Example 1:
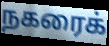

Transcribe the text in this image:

நகரைக்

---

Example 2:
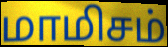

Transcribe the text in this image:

மாமிசம்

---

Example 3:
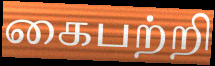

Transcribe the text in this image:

கைபற்றி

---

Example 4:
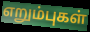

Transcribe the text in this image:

எறும்புகள்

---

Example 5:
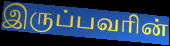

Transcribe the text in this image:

இருப்பவரின்